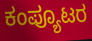
ಕಂಪ್ಯೂಟರ